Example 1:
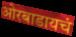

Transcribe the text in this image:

ओरबाडायचं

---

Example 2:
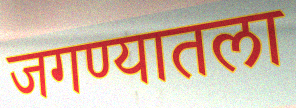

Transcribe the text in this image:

जगण्यातला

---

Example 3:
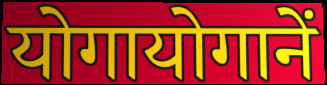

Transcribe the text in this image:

योगायोगानें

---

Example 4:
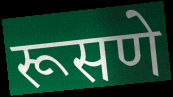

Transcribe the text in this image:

रूसणे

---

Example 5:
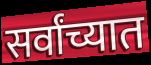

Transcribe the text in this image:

सर्वांच्यात